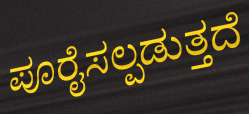
ಪೂರೈಸಲ್ಪಡುತ್ತದೆ